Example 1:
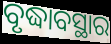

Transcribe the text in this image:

ବୃଦ୍ଧାବସ୍ଥାର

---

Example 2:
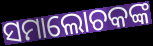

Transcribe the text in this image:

ସମାଲୋଚକଙ୍କ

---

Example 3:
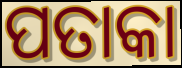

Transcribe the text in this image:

ପତାକା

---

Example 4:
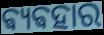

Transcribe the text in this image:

ଵ୍ଯଵହାର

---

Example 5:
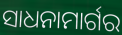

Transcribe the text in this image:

ସାଧନାମାର୍ଗର